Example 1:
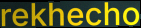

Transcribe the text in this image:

rekhecho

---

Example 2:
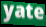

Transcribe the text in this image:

yate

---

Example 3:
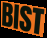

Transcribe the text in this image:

BIST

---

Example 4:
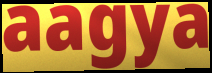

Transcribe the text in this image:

aagya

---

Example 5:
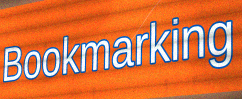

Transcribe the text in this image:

Bookmarking